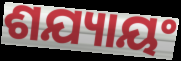
ଶଯ୍ୟାୟଂ